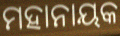
ମହାନାୟକ